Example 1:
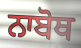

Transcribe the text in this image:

ਨਾਬੋਥ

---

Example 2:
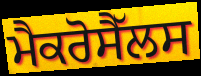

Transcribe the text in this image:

ਮੈਕਰੋਸੈੱਲਸ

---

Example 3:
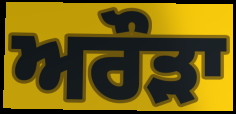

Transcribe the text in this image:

ਅਰੌੜਾ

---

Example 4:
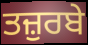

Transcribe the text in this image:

ਤਜ਼ੁਰਬੇ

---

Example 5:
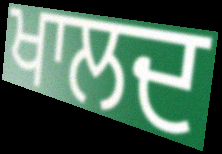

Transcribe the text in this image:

ਖਾਲਦ